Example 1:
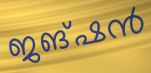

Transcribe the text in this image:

ജങ്ഷൻ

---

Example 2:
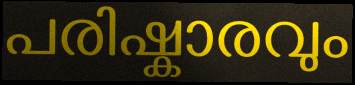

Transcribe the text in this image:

പരിഷ്കാരവും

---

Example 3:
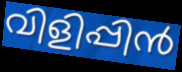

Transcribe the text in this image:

വിളിപ്പിൻ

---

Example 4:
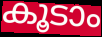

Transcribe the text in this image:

കൂടാം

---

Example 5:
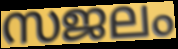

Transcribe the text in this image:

സജലം